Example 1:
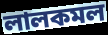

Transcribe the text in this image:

লালকমল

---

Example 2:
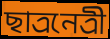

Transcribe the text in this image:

ছাত্রনেত্রী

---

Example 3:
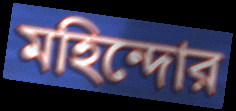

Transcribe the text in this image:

মহিন্দোর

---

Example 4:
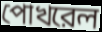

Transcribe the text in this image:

পোখরেল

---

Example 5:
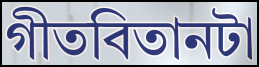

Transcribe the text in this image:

গীতবিতানটা